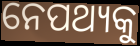
ନେପଥ୍ୟକୁ